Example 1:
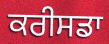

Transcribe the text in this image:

ਕਰੀਸਡਾ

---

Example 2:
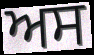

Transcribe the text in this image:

ਅਸ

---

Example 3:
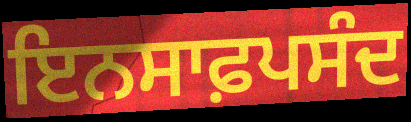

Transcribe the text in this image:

ਇਨਸਾਫ਼ਪਸੰਦ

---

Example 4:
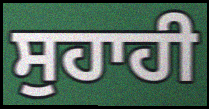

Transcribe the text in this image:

ਸੁਹਾਹੀ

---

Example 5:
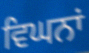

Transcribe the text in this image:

ਵਿਘਨਾਂ